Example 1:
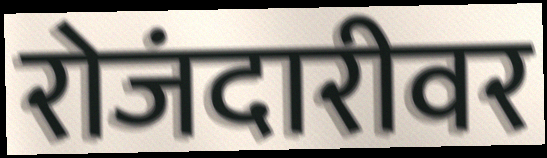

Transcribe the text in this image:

रोजंदारीवर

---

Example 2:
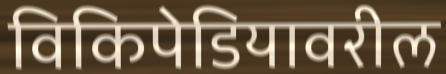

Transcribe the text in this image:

विकिपेडियावरील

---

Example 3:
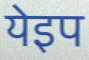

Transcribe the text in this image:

येइप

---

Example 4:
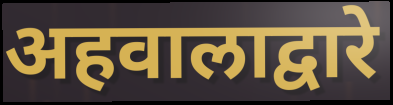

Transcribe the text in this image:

अहवालाद्वारे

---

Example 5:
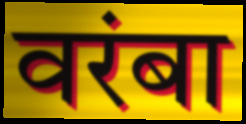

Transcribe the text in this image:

वरंबा